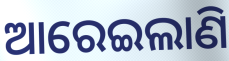
ଆରେଇଲାଣି